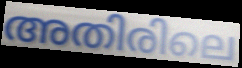
അതിരിലെ